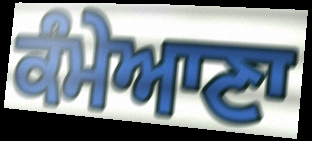
ਕੰਮੇਆਣਾ